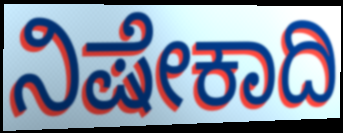
ನಿಷೇಕಾದಿ